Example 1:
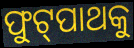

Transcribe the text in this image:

ଫୁଟ୍‌ପାଥକୁ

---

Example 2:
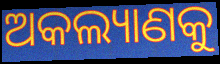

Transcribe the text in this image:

ଅକଲ୍ୟାଣକୁ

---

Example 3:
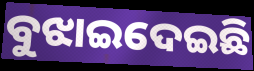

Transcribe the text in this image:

ବୁଝାଇଦେଇଛି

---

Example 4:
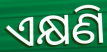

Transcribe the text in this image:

ଏକ୍ଷଣି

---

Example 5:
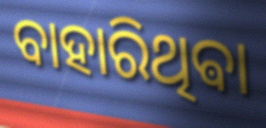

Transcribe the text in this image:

ବାହାରିଥିଵା